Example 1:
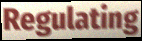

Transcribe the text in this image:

Regulating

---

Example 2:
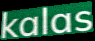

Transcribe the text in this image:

kalas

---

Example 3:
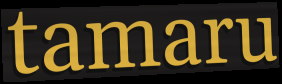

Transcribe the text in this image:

tamaru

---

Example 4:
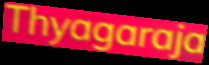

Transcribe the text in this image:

Thyagaraja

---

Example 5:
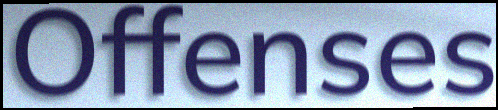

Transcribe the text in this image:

Offenses